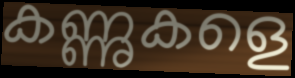
കണ്ണുകളെ